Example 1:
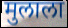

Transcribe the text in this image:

मुलाला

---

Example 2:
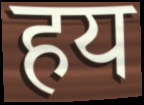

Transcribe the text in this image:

हय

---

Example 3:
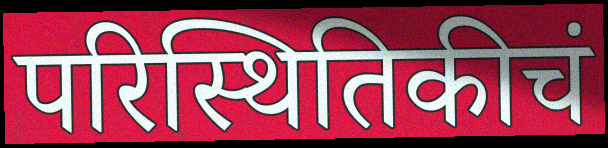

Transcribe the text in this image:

परिस्थितिकीचं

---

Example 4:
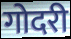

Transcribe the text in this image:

गोदरी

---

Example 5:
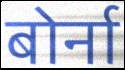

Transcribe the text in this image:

बोर्ना